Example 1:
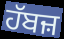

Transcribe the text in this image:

ਹੱਬਜ਼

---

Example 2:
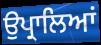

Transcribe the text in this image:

ਉਪ੍ਰਾਲਿਆਂ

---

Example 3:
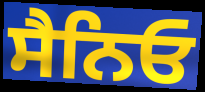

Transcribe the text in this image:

ਸੈਨਿਓ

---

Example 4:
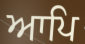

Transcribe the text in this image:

ਆਪਿ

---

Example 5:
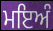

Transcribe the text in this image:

ਮਇਅੰ